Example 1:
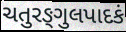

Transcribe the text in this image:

ચતુરઙ્ગુલપાદકં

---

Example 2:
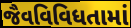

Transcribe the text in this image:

જૈવવિવિધતામાં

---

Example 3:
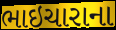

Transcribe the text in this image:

ભાઇચારાના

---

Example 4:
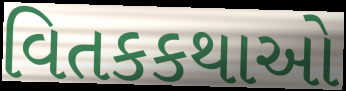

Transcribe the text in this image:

વિતકકથાઓ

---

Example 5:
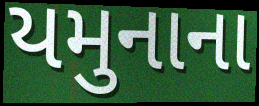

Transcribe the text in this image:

યમુનાના